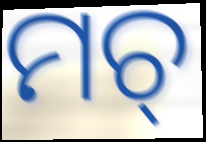
ମଚ୍